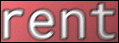
rent